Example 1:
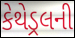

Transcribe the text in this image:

કેથેડ્રલની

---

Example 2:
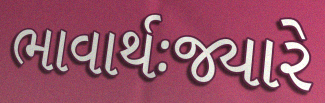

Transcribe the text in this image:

ભાવાર્થઃજ્યારે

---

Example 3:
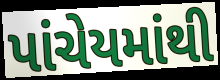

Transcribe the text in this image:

પાંચેયમાંથી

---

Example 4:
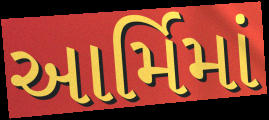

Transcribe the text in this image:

આર્મિમાં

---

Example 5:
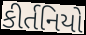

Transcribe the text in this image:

કીર્તનિયો